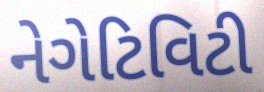
નેગેટિવિટી